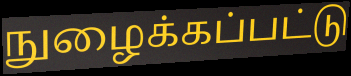
நுழைக்கப்பட்டு